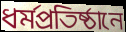
ধর্মপ্রতিষ্ঠানে